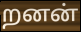
றனன்